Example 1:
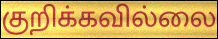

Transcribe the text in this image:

குறிக்கவில்லை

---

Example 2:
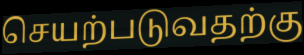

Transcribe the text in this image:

செயற்படுவதற்கு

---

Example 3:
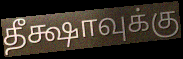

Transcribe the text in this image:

தீக்ஷாவுக்கு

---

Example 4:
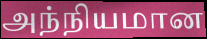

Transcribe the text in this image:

அந்நியமான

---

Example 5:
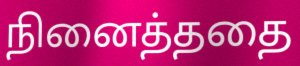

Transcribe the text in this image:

நினைத்ததை